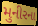
મુનીરના